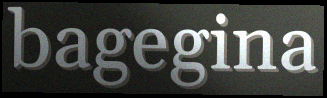
bagegina